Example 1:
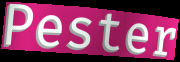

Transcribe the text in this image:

Pester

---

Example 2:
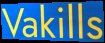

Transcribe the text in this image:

Vakills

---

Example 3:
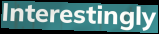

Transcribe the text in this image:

Interestingly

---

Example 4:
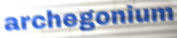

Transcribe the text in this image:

archegonium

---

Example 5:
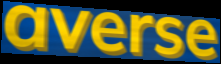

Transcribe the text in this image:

averse